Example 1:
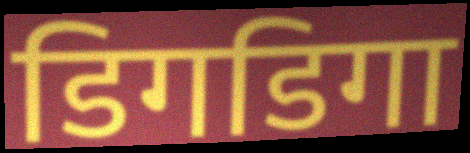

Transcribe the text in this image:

डिगडिगा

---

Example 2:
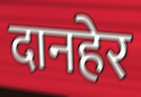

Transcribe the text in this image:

दानहेर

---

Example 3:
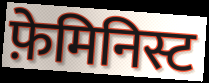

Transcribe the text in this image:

फ़ेमिनिस्ट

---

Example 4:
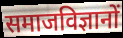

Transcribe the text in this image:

समाजविज्ञानों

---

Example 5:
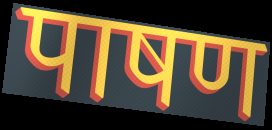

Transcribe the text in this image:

पाषण